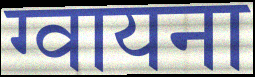
ग्वायना